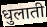
धुलाती